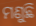
ମଣୁଛି